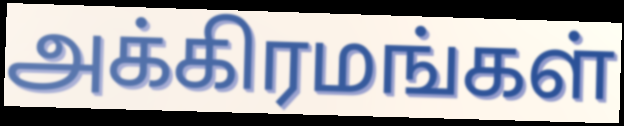
அக்கிரமங்கள்